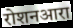
रोशनआरा